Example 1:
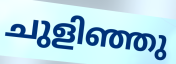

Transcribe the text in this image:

ചുളിഞ്ഞു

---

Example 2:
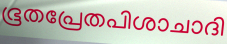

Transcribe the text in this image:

ഭൂതപ്രേതപിശാചാദി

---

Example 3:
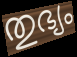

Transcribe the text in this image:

തുഭ്യം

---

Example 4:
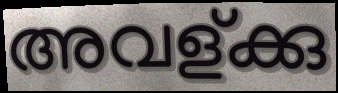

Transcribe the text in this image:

അവള്ക്കു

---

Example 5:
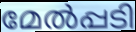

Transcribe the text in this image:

മേൽപ്പടി